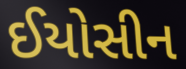
ઈયોસીન